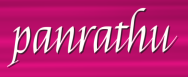
panrathu